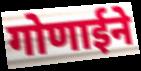
गोणाईने